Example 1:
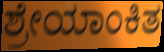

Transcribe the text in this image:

ಶ್ರೇಯಾಂಕಿತ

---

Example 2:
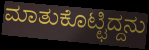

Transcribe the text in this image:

ಮಾತುಕೊಟ್ಟಿದ್ದನು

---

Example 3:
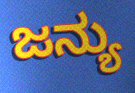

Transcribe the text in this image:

ಜನ್ಯು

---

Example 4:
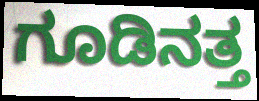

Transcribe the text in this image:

ಗೂಡಿನತ್ತ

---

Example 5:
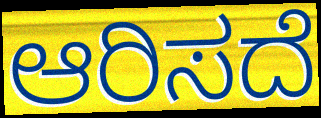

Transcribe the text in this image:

ಆರಿಸದೆ